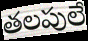
తలపులే